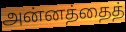
அன்னத்தைத்